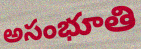
అసంభూతి